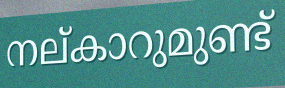
നല്കാറുമുണ്ട്